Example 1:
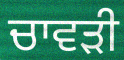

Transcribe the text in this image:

ਚਾਵੜੀ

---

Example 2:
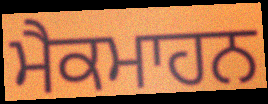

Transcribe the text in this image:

ਮੈਕਮਾਹਨ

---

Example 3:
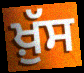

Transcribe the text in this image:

ਖ਼ੁੱਸ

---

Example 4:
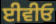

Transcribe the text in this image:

ਈਵੀਓ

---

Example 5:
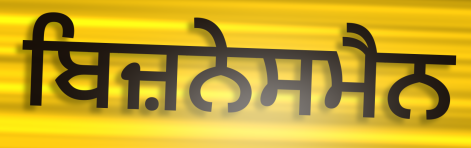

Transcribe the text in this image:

ਬਿਜ਼ਨੇਸਮੈਨ